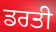
ਡਰਤੀ